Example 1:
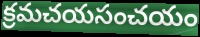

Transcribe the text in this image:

క్రమచయసంచయం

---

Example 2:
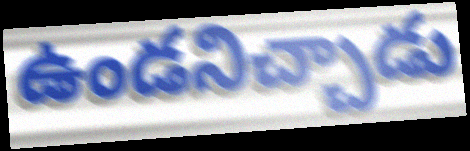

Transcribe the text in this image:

ఉండనిచ్చాడు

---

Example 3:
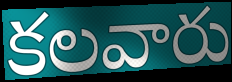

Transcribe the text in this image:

కలవారు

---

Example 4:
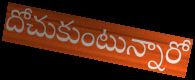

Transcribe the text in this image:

దోచుకుంటున్నారో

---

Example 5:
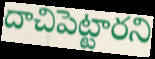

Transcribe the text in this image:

దాచిపెట్టారని